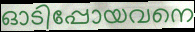
ഓടിപ്പോയവനെ